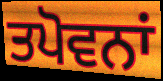
ਤਪੋਵਨਾਂ